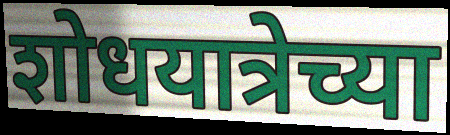
शोधयात्रेच्या